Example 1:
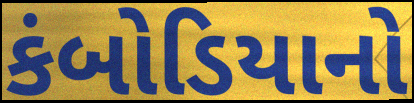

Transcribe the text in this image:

કંબોડિયાનો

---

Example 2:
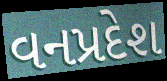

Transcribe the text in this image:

વનપ્રદેશ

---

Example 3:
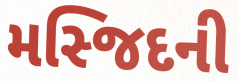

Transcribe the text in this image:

મસ્જિદની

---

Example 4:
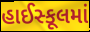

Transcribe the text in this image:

હાઈસ્કૂલમાં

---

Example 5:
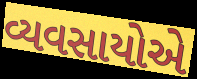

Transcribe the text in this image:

વ્યવસાયોએ